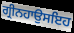
ਗ੍ਰੀਨਹਾਉਸਇਹ